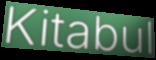
Kitabul